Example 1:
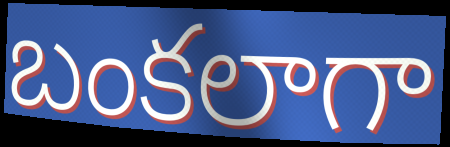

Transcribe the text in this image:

బంకలాగా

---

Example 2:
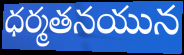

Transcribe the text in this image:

ధర్మతనయున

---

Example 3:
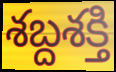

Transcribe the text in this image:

శబ్దశక్తి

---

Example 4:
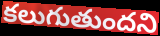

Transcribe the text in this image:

కలుగుతుందని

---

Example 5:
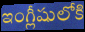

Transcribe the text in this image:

ఇంగ్లీషులోకి